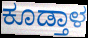
ಕೂಡ್ತಾಳ